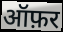
ऑफ़र